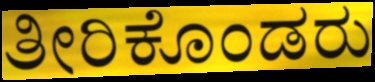
ತೀರಿಕೊಂಡರು